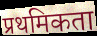
प्रथमिकता